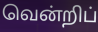
வென்றிப்